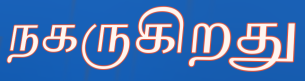
நகருகிறது